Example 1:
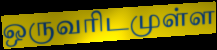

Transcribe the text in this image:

ஒருவரிடமுள்ள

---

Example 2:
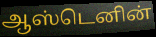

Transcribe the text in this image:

ஆஸ்டெனின்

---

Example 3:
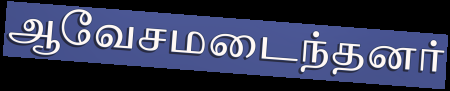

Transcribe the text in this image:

ஆவேசமடைந்தனர்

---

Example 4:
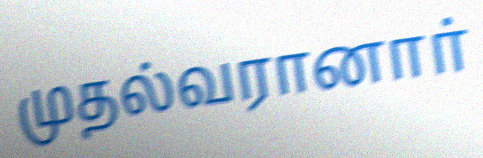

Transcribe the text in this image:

முதல்வரானார்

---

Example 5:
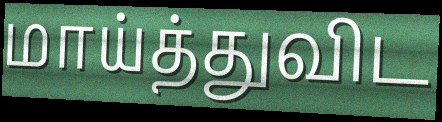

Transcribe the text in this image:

மாய்த்துவிட